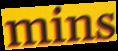
mins